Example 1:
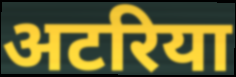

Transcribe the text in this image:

अटरिया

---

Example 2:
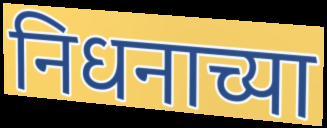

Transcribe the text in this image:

निधनाच्या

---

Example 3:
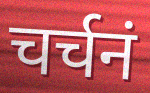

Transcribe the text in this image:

चर्चनं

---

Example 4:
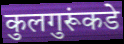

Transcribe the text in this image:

कुलगुरूंकडे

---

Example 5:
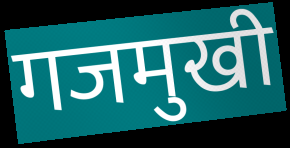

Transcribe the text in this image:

गजमुखी